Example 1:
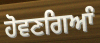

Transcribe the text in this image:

ਹੋਵਣਗਿਆੰ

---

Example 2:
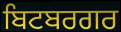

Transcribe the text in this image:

ਬਿਟਬਰਗਰ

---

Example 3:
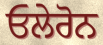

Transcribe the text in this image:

ਓਲੇਰੋਨ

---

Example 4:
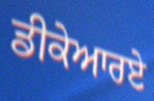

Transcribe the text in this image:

ਡੀਕੇਆਰਏ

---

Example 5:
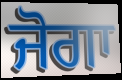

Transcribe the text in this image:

ਜੋਗਾ